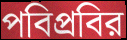
পবিপ্রবির